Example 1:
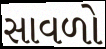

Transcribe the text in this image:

સાવળો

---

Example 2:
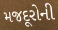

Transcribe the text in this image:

મજદૂરોની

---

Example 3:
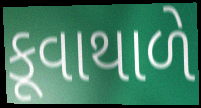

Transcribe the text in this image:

કૂવાથાળે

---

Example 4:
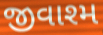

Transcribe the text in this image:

જીવાશ્મ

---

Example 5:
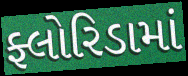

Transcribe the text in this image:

ફ્લોરિડામાં